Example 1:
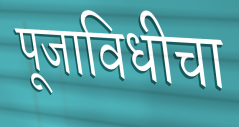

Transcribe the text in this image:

पूजाविधीचा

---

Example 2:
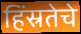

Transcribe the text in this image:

हिंस्रतेचे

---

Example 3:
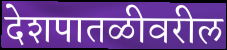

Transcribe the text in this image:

देशपातळीवरील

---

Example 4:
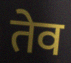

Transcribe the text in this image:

तेव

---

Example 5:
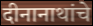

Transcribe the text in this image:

दीनानाथांचे